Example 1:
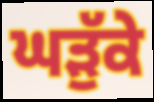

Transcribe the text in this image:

ਘੜੁੱਕੇ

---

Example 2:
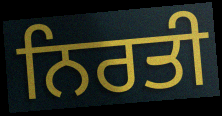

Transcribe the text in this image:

ਨਿਰਤੀ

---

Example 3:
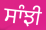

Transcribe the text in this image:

ਸਾੰਝੀ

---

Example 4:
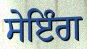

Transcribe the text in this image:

ਸੇਇੰਗ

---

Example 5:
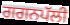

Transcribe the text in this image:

ਗਗਨਪੱਲੀ